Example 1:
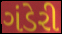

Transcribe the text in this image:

ગંડેરી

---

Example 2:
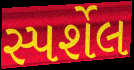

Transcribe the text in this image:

સ્પર્શેલ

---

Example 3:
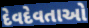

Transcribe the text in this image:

દેવદેવતાઓ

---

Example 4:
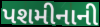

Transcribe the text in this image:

પશમીનાની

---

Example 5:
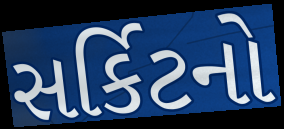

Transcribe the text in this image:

સર્કિટનો